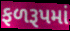
ફળરૂપમાં